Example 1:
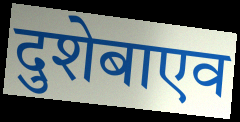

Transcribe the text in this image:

दुशेबाएव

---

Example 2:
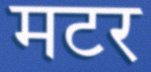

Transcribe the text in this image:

मटर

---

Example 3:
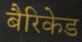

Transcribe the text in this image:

बैरिकेड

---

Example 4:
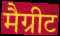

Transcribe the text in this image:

मैग्रीट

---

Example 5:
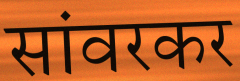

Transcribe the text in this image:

सांवरकर